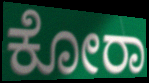
ಕೋರಾ